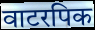
वाटरपिक